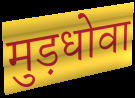
मुड़धोवा